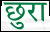
छुरा